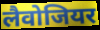
लैवोजियर